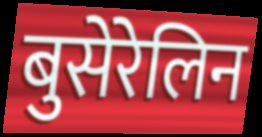
बुसेरेलिन